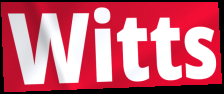
Witts